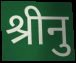
श्रीनु